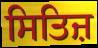
ਸਿਤਿਜ਼